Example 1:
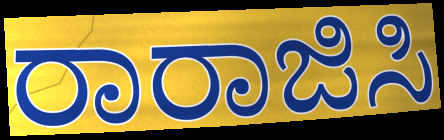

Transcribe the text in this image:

ರಾರಾಜಿಸಿ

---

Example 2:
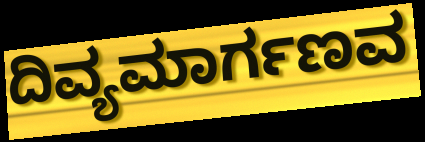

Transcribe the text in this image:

ದಿವ್ಯಮಾರ್ಗಣವ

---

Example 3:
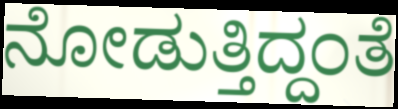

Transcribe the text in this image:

ನೋಡುತ್ತಿದ್ದಂತೆ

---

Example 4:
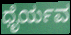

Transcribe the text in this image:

ಧೈರ್ಯವ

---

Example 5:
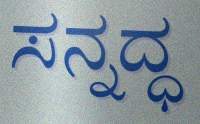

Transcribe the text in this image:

ಸನ್ನದ್ಧ